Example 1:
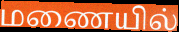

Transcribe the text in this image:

மணையில்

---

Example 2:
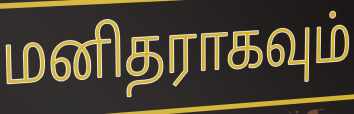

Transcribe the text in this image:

மனிதராகவும்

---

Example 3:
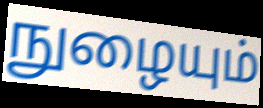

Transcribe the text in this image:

நுழையும்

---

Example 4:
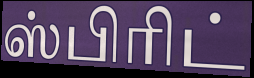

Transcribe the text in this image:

ஸ்பிரிட்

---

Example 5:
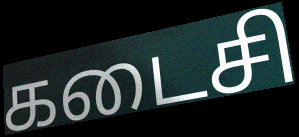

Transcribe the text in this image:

கடைசி